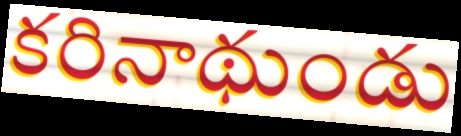
కరినాథుండు